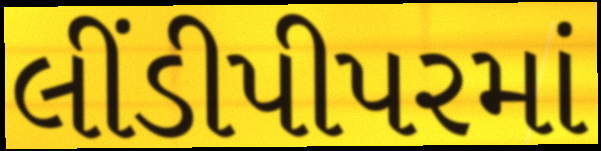
લીંડીપીપરમાં